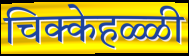
चिक्केहळ्ळी